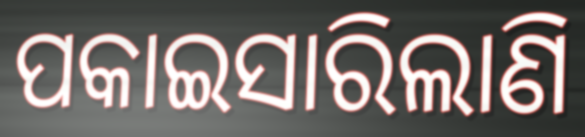
ପକାଇସାରିଲାଣି